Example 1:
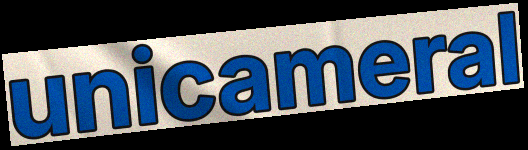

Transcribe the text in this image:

unicameral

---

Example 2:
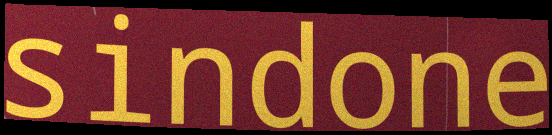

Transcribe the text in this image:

sindone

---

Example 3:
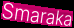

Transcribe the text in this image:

Smaraka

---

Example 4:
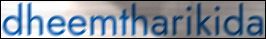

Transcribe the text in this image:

dheemtharikida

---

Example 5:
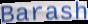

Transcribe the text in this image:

Barash